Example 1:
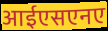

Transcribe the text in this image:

आईएसएनए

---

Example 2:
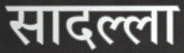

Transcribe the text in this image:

सादल्ला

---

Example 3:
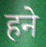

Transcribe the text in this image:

हने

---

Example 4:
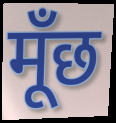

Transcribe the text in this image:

मूँछ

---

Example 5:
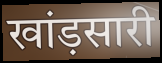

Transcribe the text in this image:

खांड़सारी